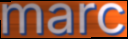
marc